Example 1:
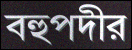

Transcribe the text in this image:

বহুপদীর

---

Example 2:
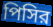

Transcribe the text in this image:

পিসির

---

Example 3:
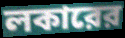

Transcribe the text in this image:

লকারের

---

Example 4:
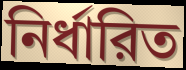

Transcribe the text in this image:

নির্ধারিত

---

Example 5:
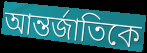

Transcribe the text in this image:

আন্তর্জাতিকে